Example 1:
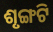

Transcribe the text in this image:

ଶୃଙ୍ଗଟି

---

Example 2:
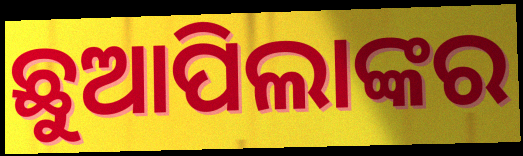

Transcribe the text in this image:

ଛୁଆପିଲାଙ୍କର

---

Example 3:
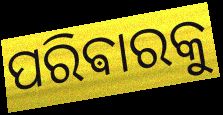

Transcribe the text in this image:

ପରିଵାରକୁ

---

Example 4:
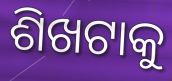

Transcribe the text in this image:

ଶିଖଟାକୁ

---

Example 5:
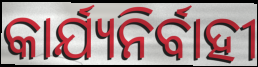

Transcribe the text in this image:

କାର୍ଯ୍ୟନିର୍ବାହୀ